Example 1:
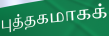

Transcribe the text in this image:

புத்தகமாகக்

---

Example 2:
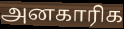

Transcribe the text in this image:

அனகாரிக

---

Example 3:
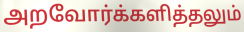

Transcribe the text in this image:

அறவோர்க்களித்தலும்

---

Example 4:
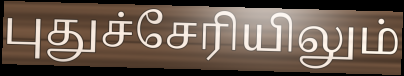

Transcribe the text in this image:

புதுச்சேரியிலும்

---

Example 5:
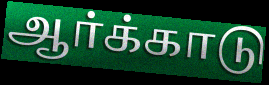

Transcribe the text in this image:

ஆர்க்காடு